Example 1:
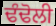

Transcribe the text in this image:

ਢੰਢੋਲੀ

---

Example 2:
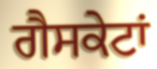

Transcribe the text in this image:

ਗੈਸਕੇਟਾਂ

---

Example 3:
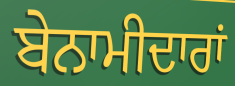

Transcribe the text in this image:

ਬੇਨਾਮੀਦਾਰਾਂ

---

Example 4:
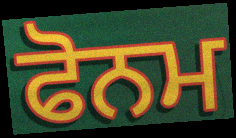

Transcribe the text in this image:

ਫੋਨਮ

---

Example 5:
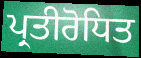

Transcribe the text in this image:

ਪ੍ਰਤੀਰੋਧਿਤ